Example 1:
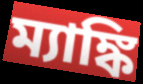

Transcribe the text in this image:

ম্যাঙ্কি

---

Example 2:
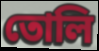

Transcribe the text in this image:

তোলি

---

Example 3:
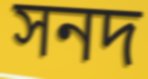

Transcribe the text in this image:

সনদ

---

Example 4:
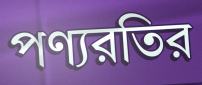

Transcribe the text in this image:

পণ্যরতির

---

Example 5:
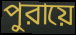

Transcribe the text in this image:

পুরায়ে